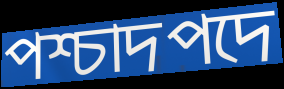
পশ্চাদপদে